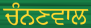
ਚੰਨਣਵਾਲ